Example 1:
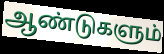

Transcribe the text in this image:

ஆண்டுகளும்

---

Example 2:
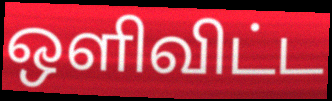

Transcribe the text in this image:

ஒளிவிட்ட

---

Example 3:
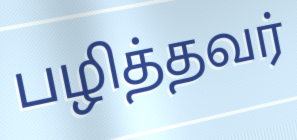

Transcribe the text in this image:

பழித்தவர்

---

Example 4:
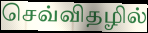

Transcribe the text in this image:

செவ்விதழில்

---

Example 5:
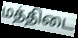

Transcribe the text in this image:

மத்திடை